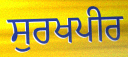
ਸੁਰਖਪੀਰ